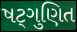
ષટ્ગુણિત